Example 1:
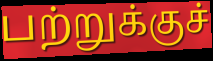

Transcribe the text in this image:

பற்றுக்குச்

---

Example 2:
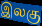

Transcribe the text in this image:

இலகு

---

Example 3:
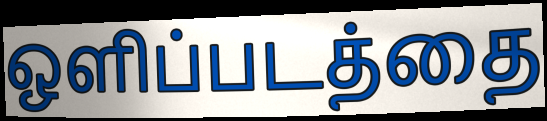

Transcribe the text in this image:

ஒளிப்படத்தை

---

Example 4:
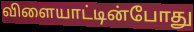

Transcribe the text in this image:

விளையாட்டின்போது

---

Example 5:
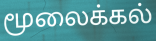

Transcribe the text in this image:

மூலைக்கல்